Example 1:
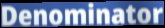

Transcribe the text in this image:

Denominator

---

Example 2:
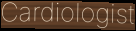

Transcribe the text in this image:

Cardiologist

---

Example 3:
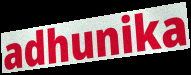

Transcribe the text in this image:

adhunika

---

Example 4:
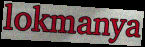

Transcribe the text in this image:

lokmanya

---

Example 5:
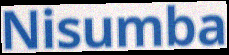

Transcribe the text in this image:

Nisumba